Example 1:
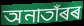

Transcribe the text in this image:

অনাতাঁৰৰ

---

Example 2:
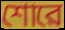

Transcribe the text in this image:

শোৱে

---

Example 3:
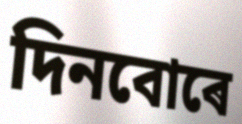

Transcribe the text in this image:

দিনবোৰে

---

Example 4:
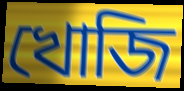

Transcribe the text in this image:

খোজি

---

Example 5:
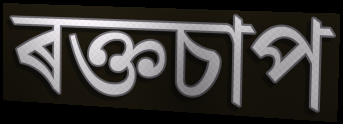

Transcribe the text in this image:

ৰক্তচাপ